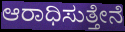
ಆರಾಧಿಸುತ್ತೇನೆ